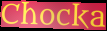
Chocka